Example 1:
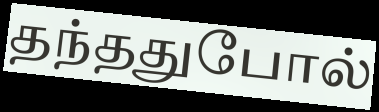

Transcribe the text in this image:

தந்ததுபோல்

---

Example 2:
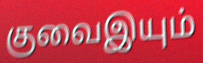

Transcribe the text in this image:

குவைஇயும்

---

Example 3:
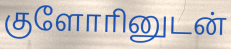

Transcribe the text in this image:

குளோரினுடன்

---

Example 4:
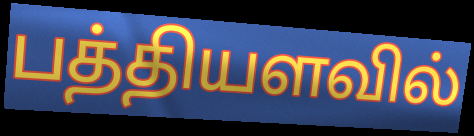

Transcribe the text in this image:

பத்தியளவில்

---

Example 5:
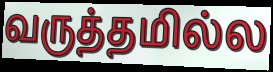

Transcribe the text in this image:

வருத்தமில்ல